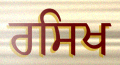
ਰਸਿਖ